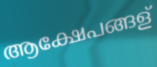
ആക്ഷേപങ്ങള്